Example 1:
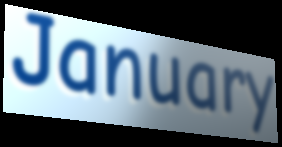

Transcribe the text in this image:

January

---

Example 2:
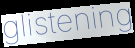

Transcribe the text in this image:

glistening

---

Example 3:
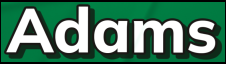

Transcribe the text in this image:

Adams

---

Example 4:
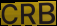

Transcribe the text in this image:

CRB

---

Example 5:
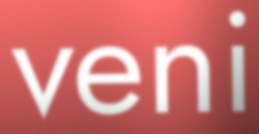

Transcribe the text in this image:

veni